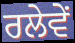
ਰਲੇਵੇਂ